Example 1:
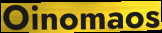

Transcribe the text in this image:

Oinomaos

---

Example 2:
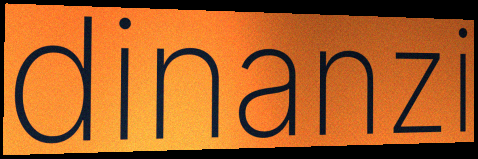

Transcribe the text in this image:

dinanzi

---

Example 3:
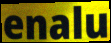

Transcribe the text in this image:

enalu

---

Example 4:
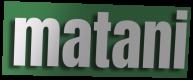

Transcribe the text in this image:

matani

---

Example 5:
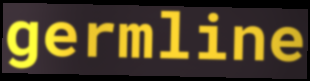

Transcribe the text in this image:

germline